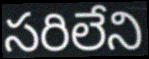
సరిలేని